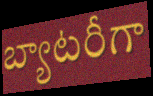
బ్యాటరీగా